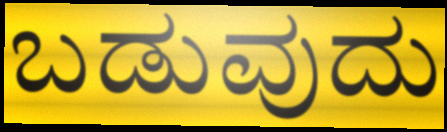
ಬಡುವುದು